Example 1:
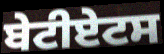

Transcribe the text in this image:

ਬੇਟੀਏਟਸ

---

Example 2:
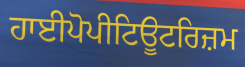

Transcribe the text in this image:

ਹਾਈਪੋਪੀਟਿਊਟਰਿਜ਼ਮ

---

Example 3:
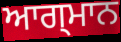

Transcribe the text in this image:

ਆਗ੍ਮਾਨ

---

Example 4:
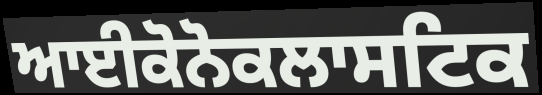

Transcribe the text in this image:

ਆਈਕੋਨੋਕਲਾਸਟਿਕ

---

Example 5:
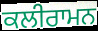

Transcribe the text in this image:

ਕਲੀਰਾਮਨ